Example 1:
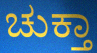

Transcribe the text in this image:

ಚುಕ್ತಾ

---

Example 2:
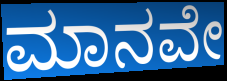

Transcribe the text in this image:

ಮಾನವೇ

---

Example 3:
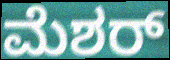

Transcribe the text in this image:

ಮೆಶರ್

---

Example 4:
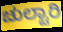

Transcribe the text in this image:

ಚುಲ್ಟಾರಿ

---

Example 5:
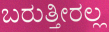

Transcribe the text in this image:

ಬರುತ್ತೀರಲ್ಲ